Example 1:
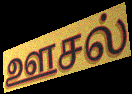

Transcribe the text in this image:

ஊசல்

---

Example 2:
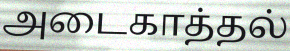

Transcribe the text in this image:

அடைகாத்தல்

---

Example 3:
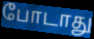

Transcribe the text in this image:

போடாது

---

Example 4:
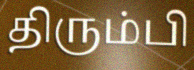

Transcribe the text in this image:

திரும்பி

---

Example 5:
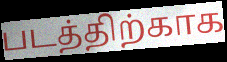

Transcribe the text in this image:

படத்திற்காக